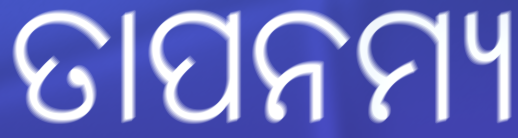
ତାପନମ୍ୟ